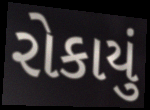
રોકાયું